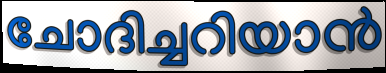
ചോദിച്ചറിയാൻ